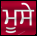
ਮੂਸੇ